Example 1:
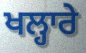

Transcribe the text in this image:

ਖਲ੍ਹਾਰੇ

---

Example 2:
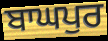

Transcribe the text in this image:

ਬਾਘਪੁਰ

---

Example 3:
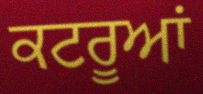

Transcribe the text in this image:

ਕਟਰੂਆਂ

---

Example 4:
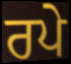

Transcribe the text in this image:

ਰਪੇ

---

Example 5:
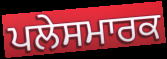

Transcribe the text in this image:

ਪਲੇਸਮਾਰਕ